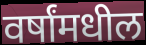
वर्षांमधील